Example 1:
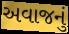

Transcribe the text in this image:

અવાજનું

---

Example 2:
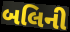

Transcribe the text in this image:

બલિની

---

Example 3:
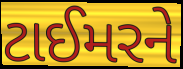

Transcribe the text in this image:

ટાઈમરને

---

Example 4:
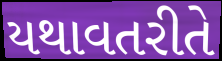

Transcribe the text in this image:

યથાવતરીતે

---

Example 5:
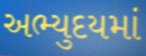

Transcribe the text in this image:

અભ્યુદયમાં